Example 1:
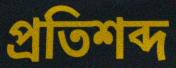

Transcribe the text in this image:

প্ৰতিশব্দ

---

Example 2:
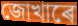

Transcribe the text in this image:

জোখাৰে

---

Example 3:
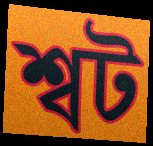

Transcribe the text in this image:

শ্বট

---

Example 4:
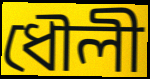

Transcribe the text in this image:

ধৌলী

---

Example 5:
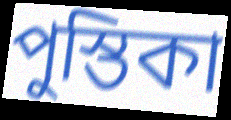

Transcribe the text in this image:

পুস্তিকা